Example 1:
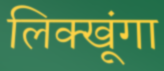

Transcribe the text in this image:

लिक्खूंगा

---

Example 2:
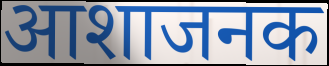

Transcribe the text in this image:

आशाजनक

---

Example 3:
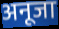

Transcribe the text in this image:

अनूजा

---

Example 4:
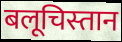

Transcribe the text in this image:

बलूचिस्‍तान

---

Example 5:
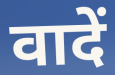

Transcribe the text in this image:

वादें